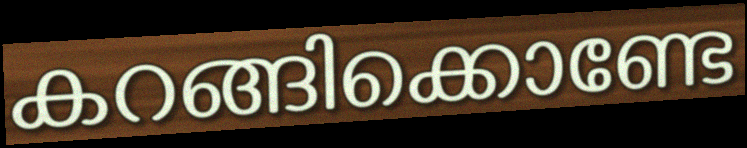
കറങ്ങിക്കൊണ്ടേ